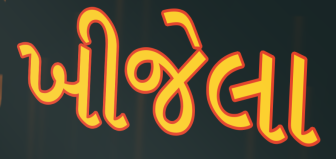
ખીજેલા